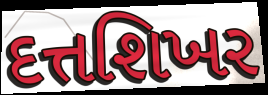
દત્તશિખર